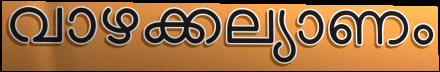
വാഴക്കല്യാണം